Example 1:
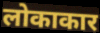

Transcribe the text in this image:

लोकाकार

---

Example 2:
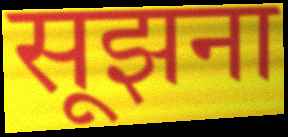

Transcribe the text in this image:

सूझना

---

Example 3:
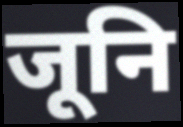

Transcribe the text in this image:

जूनि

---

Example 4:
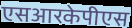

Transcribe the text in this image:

एसआरकेपीएस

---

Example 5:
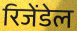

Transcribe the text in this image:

रिजेंडेल